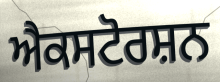
ਐਕਸਟੋਰਸ਼ਨ